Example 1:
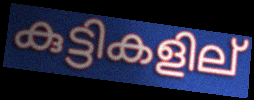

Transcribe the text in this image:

കുട്ടികളില്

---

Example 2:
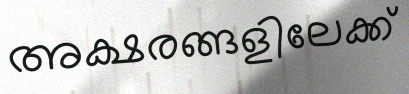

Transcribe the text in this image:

അക്ഷരങ്ങളിലേക്ക്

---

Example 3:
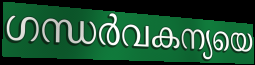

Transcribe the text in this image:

ഗന്ധർവകന്യയെ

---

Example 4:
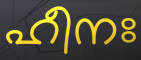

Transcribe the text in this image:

ഹീനഃ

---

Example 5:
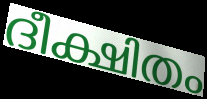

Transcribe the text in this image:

ദീക്ഷിതം